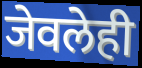
जेवलेही